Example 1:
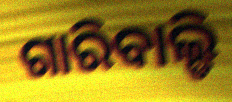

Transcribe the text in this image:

ଗାରିବାଲ୍ଡି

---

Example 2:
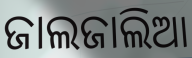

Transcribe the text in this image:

ଜାଲଜାଲିଆ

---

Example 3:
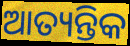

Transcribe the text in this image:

ଆତ୍ୟନ୍ତିକ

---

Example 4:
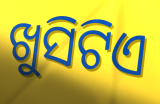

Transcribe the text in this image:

ଖୁସିଟିଏ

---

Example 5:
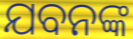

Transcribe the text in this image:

ଯବନଙ୍କ